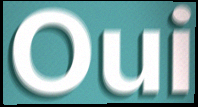
Oui